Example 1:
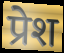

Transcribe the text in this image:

प्रेश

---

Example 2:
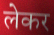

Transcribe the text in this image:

लेकर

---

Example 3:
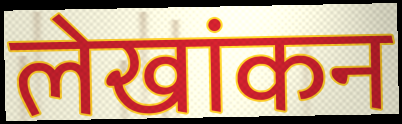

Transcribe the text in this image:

लेखांकन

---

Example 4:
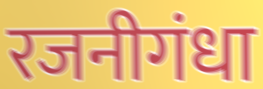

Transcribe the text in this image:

रजनीगंधा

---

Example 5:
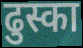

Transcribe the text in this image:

ढुस्का